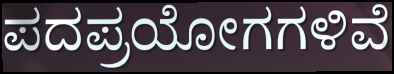
ಪದಪ್ರಯೋಗಗಳಿವೆ